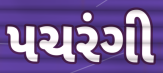
પચરંગી